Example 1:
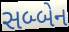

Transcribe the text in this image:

સબ્બેન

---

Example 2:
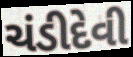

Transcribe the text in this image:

ચંડીદેવી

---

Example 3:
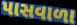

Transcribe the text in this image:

પાસવાળા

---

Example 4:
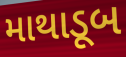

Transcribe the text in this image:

માથાડૂબ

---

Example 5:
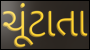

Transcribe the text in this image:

ચૂંટાતા